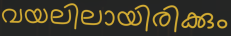
വയലിലായിരിക്കും